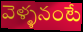
వెళ్ళనంటే